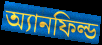
অ্যানফিল্ড